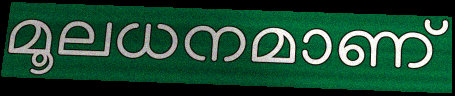
മൂലധനമാണ്